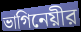
ভাগিনেয়ীর